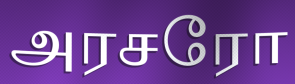
அரசரோ